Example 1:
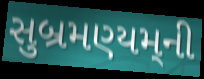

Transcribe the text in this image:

સુબ્રમણ્યમ્‌ની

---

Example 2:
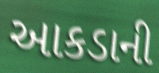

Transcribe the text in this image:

આકડાની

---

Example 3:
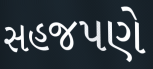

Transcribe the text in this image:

સહજપણે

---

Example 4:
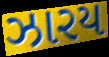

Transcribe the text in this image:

ઝારય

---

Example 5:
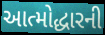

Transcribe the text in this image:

આત્મોદ્ધારની